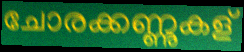
ചോരക്കണ്ണുകള്